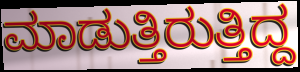
ಮಾಡುತ್ತಿರುತ್ತಿದ್ದ